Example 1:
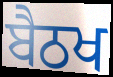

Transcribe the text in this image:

ਬੈਠਖ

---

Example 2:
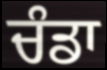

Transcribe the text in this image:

ਚੰਡਾ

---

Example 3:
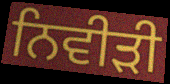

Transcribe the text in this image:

ਨਿਵੀੜੀ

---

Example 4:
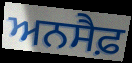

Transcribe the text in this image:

ਅਨਸੈਫ਼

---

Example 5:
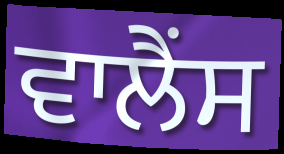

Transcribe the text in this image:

ਵਾਲੈਂਸ